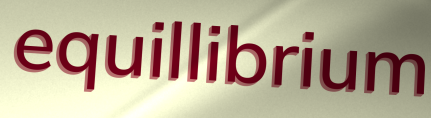
equillibrium